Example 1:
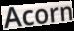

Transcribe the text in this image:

Acorn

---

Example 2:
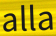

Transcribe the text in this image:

alla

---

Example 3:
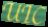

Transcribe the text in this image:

UIC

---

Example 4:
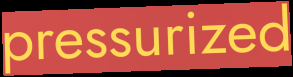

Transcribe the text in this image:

pressurized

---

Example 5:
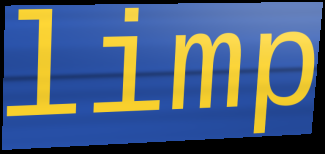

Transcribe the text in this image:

limp